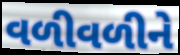
વળીવળીને